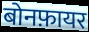
बोनफ़ायर